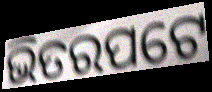
ଭିତରପଟେ